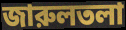
জারুলতলা